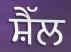
ਸ਼ੈੱਲ